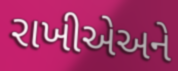
રાખીએઅને